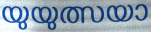
യുയുത്സയാ